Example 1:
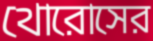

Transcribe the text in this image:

থোরোসের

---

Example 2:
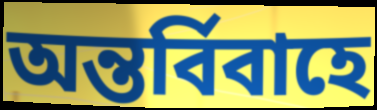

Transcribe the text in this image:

অন্তর্বিবাহে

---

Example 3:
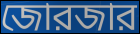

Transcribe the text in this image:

জোরজার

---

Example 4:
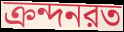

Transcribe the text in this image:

ক্রন্দনরত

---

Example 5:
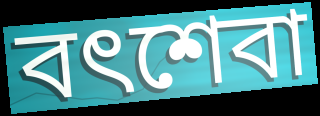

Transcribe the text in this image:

বৎশেবা